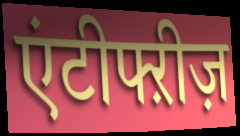
एंटीफ्ऱीज़